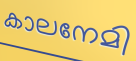
കാലനേമി